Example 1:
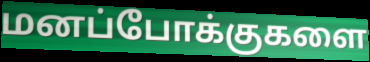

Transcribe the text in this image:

மனப்போக்குகளை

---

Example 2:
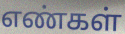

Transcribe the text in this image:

எண்கள்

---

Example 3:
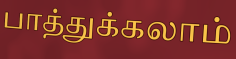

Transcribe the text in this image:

பாத்துக்கலாம்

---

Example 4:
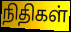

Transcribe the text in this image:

நிதிகள்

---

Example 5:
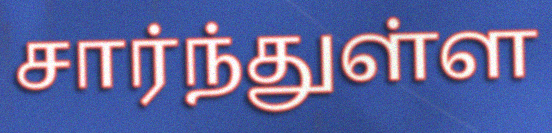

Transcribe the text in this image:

சார்ந்துள்ள